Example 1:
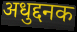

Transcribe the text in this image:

अधुद्दनक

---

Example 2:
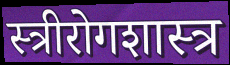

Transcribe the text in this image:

स्त्रीरोगशास्त्र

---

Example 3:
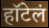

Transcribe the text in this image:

हॉटेलं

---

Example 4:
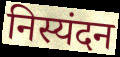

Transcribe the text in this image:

निस्यंदन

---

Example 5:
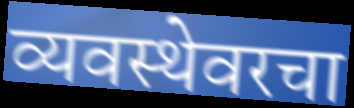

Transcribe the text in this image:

व्यवस्थेवरचा